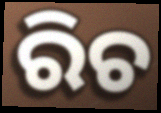
ରିଚ